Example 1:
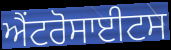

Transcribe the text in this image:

ਐਂਟਰੋਸਾਈਟਸ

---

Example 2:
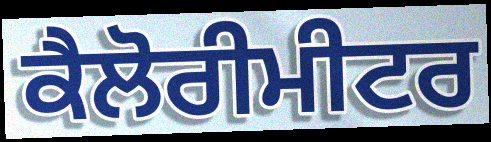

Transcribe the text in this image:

ਕੈਲੋਰੀਮੀਟਰ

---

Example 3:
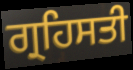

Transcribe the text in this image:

ਗ੍ਰਹਿਸਤੀ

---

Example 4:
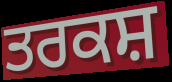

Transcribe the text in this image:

ਤਰਕਸ਼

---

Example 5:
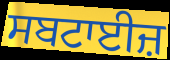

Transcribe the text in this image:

ਸਬਟਾਈਜ਼